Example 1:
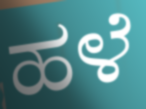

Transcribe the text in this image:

ಹಳೆ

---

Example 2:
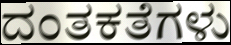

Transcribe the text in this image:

ದಂತಕತೆಗಳು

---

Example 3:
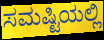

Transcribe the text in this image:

ಸಮಷ್ಟಿಯಲ್ಲಿ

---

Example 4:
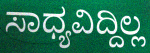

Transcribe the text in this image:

ಸಾಧ್ಯವಿದ್ದಿಲ್ಲ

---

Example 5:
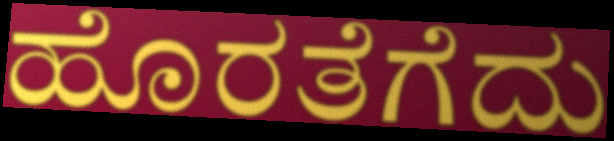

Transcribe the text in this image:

ಹೊರತೆಗೆದು